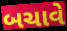
બચાવે